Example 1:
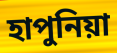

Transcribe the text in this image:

হাপুনিয়া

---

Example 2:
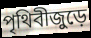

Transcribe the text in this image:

পৃথিবীজুড়ে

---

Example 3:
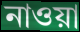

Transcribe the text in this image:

নাওয়া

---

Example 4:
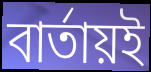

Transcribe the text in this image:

বার্তায়ই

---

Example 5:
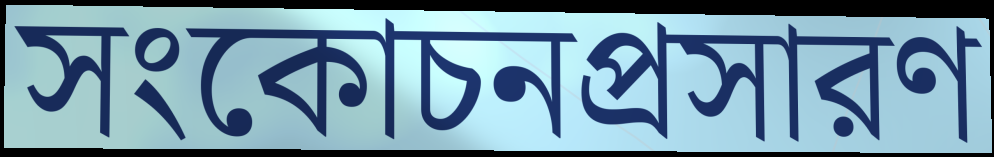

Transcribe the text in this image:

সংকোচনপ্রসারণ